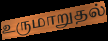
உருமாறுதல்